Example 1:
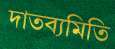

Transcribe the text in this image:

দাতব্যমিতি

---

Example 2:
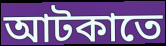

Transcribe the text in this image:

আটকাতে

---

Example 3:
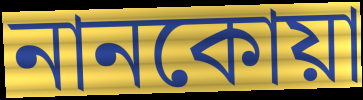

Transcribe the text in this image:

নানকোয়া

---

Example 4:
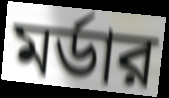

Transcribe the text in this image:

মর্ডার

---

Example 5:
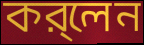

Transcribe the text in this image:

কর্‌লেন